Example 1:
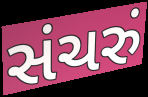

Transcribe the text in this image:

સંચરું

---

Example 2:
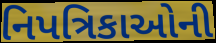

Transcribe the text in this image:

નિપત્રિકાઓની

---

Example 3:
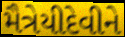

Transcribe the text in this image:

મૈત્રેયીદેવીને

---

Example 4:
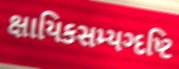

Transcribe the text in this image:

ક્ષાયિકસમ્યગ્દષ્ટિ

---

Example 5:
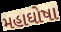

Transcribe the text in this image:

મહાઘોષા